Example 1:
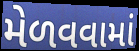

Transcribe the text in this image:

મેળવવામાં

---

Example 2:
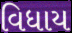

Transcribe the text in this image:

વિધાય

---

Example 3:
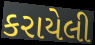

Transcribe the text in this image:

કરાયેલી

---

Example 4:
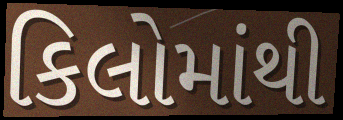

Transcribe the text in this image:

કિલોમાંથી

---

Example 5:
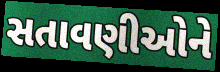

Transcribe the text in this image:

સતાવણીઓને